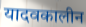
यादवकालीन